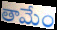
తామేం